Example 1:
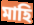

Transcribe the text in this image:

মাহি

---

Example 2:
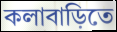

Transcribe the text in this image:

কলাবাড়িতে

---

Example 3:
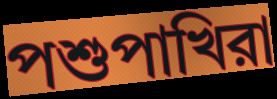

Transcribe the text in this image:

পশুপাখিরা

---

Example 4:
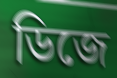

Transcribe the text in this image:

ডিজে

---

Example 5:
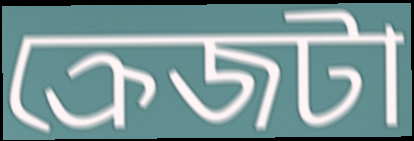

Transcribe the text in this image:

ক্রেজটা